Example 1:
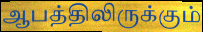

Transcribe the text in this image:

ஆபத்திலிருக்கும்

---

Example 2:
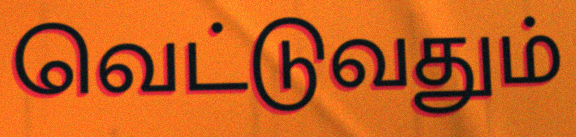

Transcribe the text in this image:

வெட்டுவதும்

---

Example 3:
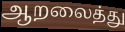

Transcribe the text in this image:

ஆறலைத்து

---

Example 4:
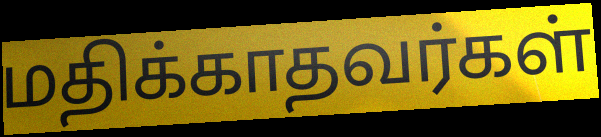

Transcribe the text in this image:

மதிக்காதவர்கள்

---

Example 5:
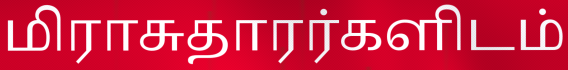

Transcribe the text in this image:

மிராசுதாரர்களிடம்